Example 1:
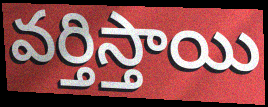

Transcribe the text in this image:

వర్తిస్తాయి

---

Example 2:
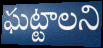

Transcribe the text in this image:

ఘట్టాలని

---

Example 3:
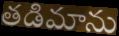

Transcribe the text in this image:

తడిమాను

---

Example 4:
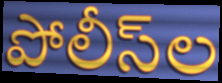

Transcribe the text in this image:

పోలీస్‌ల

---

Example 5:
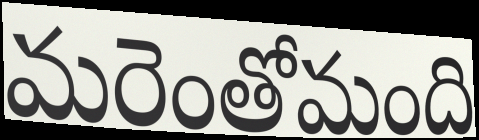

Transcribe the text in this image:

మరెంతోమంది